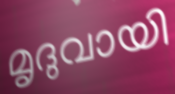
മൃദുവായി